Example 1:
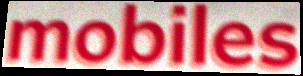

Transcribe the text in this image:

mobiles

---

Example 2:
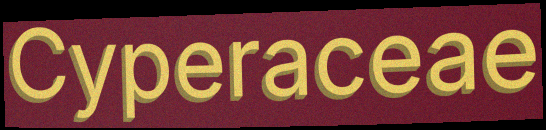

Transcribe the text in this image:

Cyperaceae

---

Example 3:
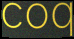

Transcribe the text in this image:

coq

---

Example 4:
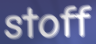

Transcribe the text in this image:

stoff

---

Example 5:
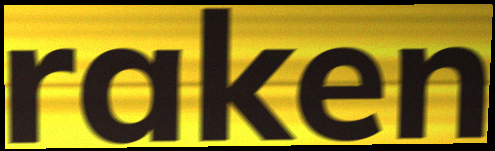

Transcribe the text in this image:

raken